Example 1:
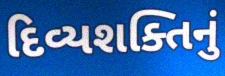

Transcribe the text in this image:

દિવ્યશક્તિનું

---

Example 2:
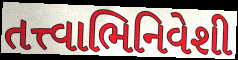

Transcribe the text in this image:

તત્ત્વાભિનિવેશી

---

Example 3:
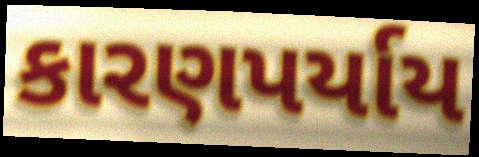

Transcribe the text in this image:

કારણપર્યાય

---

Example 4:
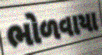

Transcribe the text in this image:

ભોળવાયા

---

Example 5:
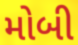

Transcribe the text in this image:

મોબી